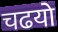
चढयो